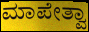
ಮಾಪೇತ್ವಾ